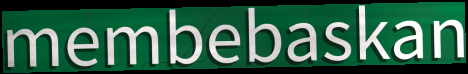
membebaskan